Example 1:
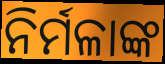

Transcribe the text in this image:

ନିର୍ମଳାଙ୍କ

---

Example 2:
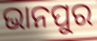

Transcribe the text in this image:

ଭାନପୁର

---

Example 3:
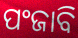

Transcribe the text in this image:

ପଂଜାବି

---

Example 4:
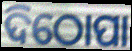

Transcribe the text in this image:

ଦିଠୋପା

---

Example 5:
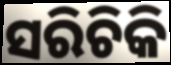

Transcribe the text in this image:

ସରିଚିକି